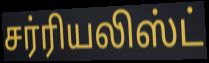
சர்ரியலிஸ்ட்